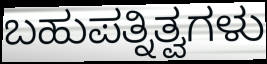
ಬಹುಪತ್ನಿತ್ವಗಳು